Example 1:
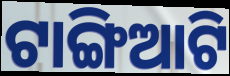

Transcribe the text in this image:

ଟାଙ୍ଗିଆଟି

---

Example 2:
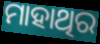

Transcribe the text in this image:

ମାହାଥିର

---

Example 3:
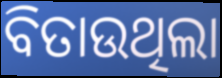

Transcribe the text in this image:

ବିତାଉଥିଲା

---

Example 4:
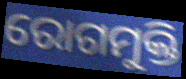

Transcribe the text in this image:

ରୋଗମୁକ୍ତି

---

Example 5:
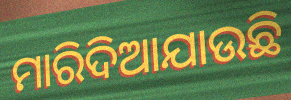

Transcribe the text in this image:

ମାରିଦିଆଯାଉଛି